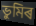
ভুমিৰ